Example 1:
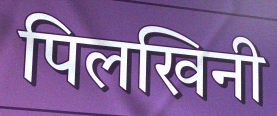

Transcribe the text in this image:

पिलखिनी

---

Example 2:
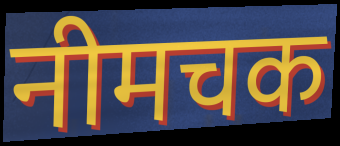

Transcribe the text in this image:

नीमचक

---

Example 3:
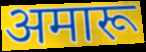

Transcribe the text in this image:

अमारू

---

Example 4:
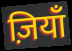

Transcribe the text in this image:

ज़ियाँ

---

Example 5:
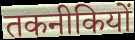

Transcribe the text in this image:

तकनीकियों